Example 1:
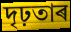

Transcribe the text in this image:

দৃঢ়তাৰ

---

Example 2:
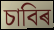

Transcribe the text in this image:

চাবিৰ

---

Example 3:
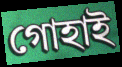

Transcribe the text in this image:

গোহাই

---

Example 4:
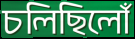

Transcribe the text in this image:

চলিছিলোঁ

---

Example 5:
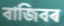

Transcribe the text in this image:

বাজিবৰ